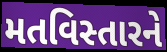
મતવિસ્તારને